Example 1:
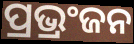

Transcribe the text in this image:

ପ୍ରଭ୍ରଂଜନ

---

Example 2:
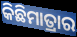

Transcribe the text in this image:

କିଛିମାତ୍ରାର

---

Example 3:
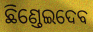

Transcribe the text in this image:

ଛିଣ୍ଡେଇଦେବ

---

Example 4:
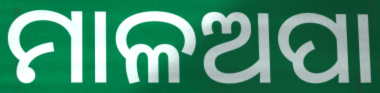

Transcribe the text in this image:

ମାଳଅପା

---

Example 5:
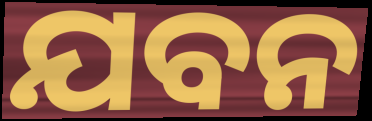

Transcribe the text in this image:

ଯବନ